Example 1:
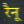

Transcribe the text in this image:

रैनू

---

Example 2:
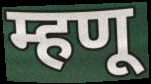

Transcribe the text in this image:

म्हणू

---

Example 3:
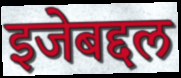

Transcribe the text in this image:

इजेबद्दल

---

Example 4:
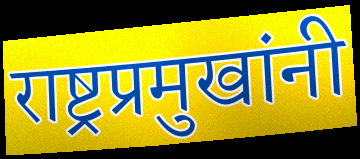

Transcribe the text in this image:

राष्ट्रप्रमुखांनी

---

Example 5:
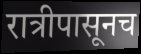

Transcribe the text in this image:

रात्रीपासूनच